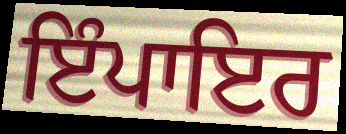
ਇੰਪਾਇਰ